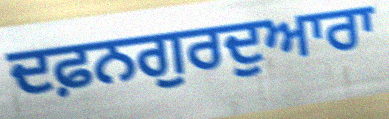
ਦਫ਼ਨਗੁਰਦੁਆਰਾ